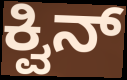
ಕ್ವಿನ್